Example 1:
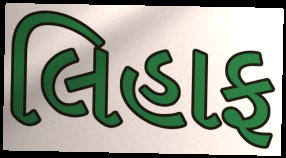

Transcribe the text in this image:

લિહાફ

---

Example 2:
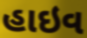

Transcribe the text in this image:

હાઇવ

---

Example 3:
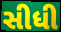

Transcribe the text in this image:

સીધી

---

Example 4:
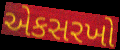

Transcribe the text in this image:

એકસરખો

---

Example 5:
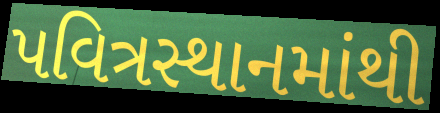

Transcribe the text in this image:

પવિત્રસ્થાનમાંથી